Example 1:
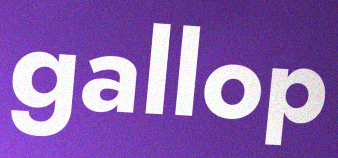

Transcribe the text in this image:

gallop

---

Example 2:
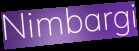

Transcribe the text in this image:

Nimbargi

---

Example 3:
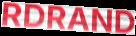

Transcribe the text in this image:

RDRAND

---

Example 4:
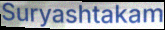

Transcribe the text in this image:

Suryashtakam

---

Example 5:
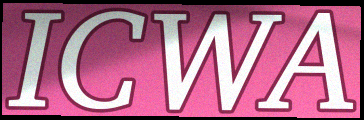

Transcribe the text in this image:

ICWA